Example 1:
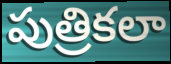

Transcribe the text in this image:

పుత్రికలా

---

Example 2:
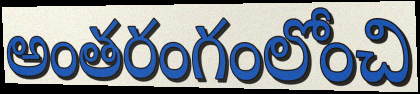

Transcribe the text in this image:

అంతరంగంలోంచి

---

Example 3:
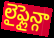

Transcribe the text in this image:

లైఫ్లైన్గా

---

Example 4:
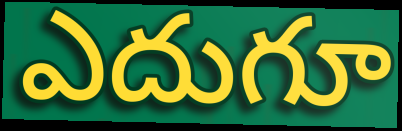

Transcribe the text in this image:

ఎదుగూ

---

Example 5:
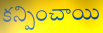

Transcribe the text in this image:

కన్పించాయి